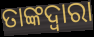
ତାଙ୍କଦ୍ଵାରା